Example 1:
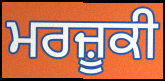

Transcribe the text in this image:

ਮਰਜ਼ੂਕੀ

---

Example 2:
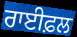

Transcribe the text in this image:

ਰਾਈਫ਼ਲ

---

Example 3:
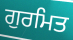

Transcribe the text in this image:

ਗੁਰਮਿਤ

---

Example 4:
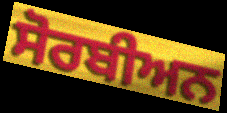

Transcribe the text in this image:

ਸੋਰਬੀਅਨ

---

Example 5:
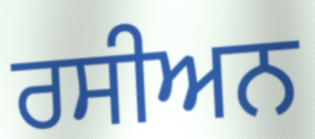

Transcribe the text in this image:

ਰਸੀਅਨ